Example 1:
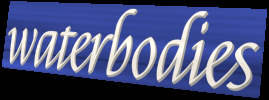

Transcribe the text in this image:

waterbodies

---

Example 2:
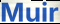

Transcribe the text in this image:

Muir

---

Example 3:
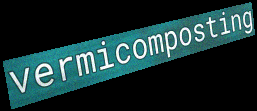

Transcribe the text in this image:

vermicomposting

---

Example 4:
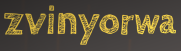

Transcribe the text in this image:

zvinyorwa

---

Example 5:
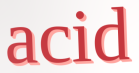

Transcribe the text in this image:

acid